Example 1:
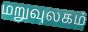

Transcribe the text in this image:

மறுவுலகம்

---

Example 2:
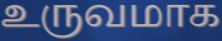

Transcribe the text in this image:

உருவமாக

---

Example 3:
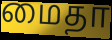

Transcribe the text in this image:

மைதா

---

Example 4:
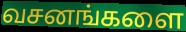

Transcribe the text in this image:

வசனங்களை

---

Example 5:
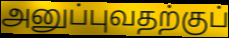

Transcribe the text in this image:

அனுப்புவதற்குப்